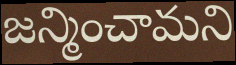
జన్మించామని